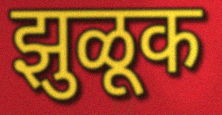
झुळूक